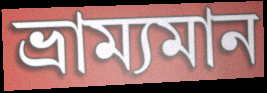
ভ্ৰাম্যমান